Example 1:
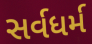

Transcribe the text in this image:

સર્વધર્મ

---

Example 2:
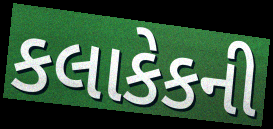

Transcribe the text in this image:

કલાકેકની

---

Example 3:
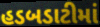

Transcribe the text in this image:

હડબડાટીમાં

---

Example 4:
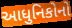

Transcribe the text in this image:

આધુનિકોનો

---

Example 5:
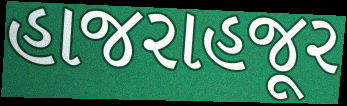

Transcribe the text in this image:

હાજરાહજૂર